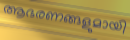
ആഭരണങ്ങളുമായി